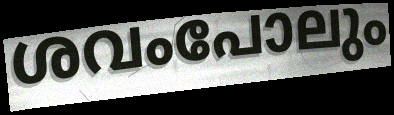
ശവംപോലും